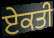
ਏਕਤੀ